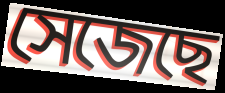
সেজেছে